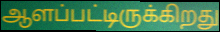
ஆளப்பட்டிருக்கிறது